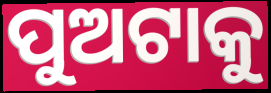
ପୁଅଟାକୁ